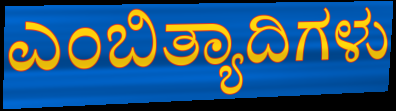
ಎಂಬಿತ್ಯಾದಿಗಳು